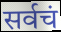
सर्वचं